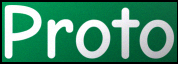
Proto